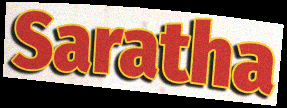
Saratha